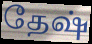
தேஷ்